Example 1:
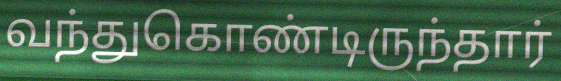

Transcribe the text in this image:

வந்துகொண்டிருந்தார்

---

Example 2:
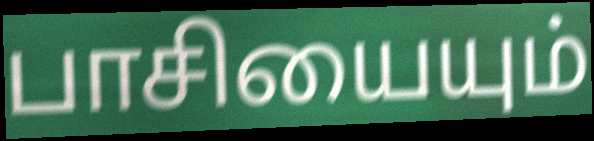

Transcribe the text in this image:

பாசியையும்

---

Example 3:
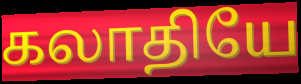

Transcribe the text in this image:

கலாதியே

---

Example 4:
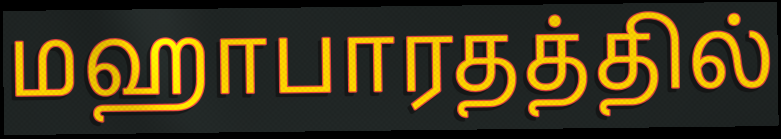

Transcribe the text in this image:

மஹாபாரதத்தில்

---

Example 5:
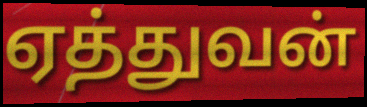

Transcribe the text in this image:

ஏத்துவன்